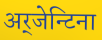
अर्जेन्टिना